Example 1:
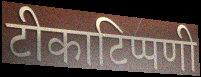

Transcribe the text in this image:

टीकाटिप्पणी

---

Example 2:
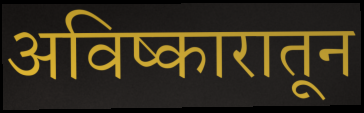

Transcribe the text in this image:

अविष्कारातून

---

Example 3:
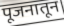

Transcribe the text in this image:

पूजनातून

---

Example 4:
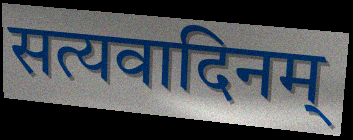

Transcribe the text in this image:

सत्यवादिनम्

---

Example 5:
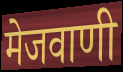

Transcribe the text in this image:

मेजवाणी